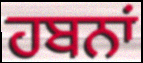
ਹਬਨਾਂ